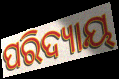
ପରିଦ୍ୟାୟ